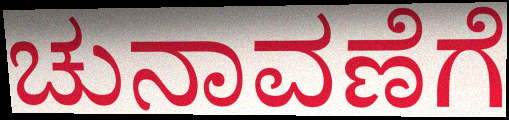
ಚುನಾವಣೆಗೆ